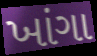
ખાંગા